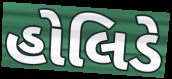
હોલિડે